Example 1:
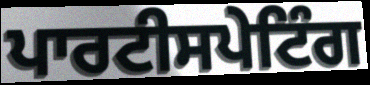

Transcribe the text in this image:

ਪਾਰਟੀਸਪੇਟਿੰਗ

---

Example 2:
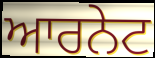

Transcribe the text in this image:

ਆਰਨੇਟ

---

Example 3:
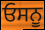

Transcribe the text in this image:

ਓਸਨੂ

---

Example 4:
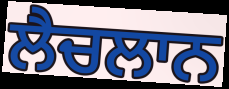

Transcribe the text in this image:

ਲੈਚਲਾਨ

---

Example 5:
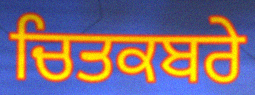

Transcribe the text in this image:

ਚਿਤਕਬਰੇ